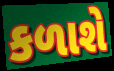
કળાશે